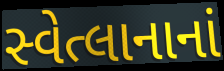
સ્વેત્લાનાનાં